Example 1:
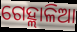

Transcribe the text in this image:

ଗେହ୍ଲାଳିଆ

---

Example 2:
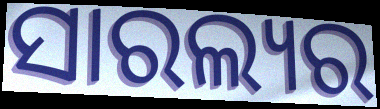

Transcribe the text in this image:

ସାରଲ୍ୟର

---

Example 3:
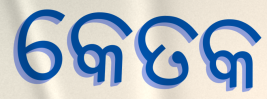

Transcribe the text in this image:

କେତକ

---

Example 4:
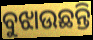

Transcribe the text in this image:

ବୁଝାଉଛନ୍ତି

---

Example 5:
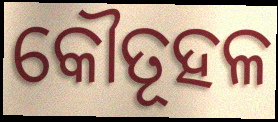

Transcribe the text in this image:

କୌତୂହଳ